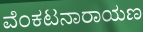
ವೆಂಕಟನಾರಾಯಣ